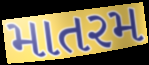
માતરમ